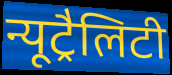
न्यूट्रैलिटी